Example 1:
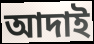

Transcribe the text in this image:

আদাই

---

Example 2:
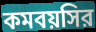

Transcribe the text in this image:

কমবয়সির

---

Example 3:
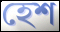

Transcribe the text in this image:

হেশ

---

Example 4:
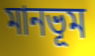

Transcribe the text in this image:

মানভূম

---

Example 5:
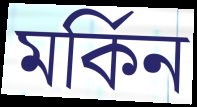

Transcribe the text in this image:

মর্কিন